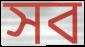
সব